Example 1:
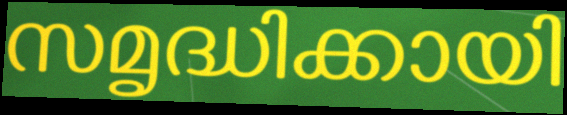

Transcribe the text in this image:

സമൃദ്ധിക്കായി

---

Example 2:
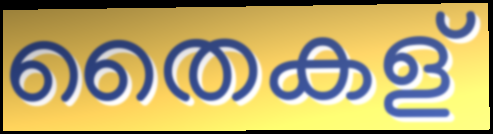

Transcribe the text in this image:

തൈകള്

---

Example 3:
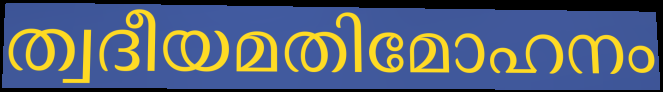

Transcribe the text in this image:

ത്വദീയമതിമോഹനം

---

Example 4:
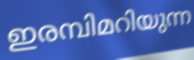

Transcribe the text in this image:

ഇരമ്പിമറിയുന്ന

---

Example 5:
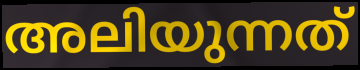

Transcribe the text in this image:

അലിയുന്നത്